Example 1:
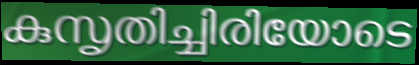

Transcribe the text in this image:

കുസൃതിച്ചിരിയോടെ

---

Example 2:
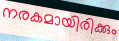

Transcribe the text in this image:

നരകമായിരിക്കും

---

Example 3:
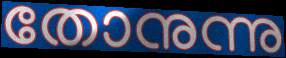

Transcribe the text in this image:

തോനുന്നു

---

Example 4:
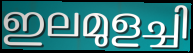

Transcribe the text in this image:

ഇലമുളച്ചി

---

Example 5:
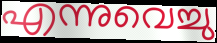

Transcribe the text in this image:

എന്നുവെച്ചു